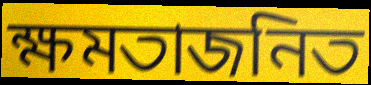
ক্ষমতাজনিত